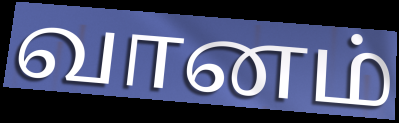
வானம்